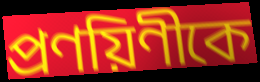
প্রণয়িণীকে